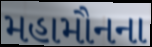
મહામૌનના